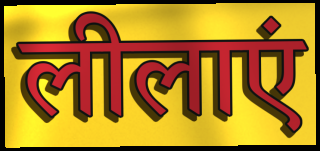
लीलाएं